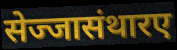
सेज्जासंथारए